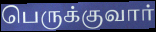
பெருக்குவார்